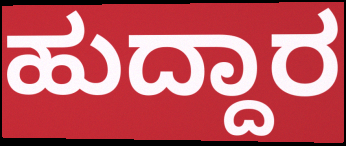
ಹುದ್ದಾರ